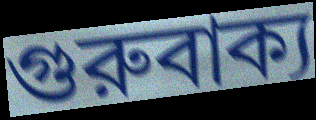
গুরুবাক্য